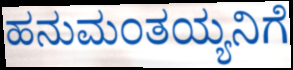
ಹನುಮಂತಯ್ಯನಿಗೆ